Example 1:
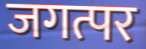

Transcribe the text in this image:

जगत्पर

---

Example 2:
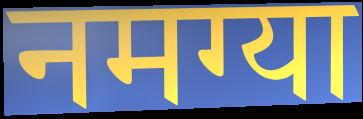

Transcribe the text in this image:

नमग्या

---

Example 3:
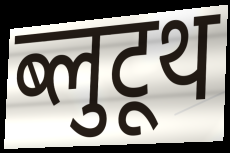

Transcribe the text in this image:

ब्लुटूथ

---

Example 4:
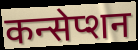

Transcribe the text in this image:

कन्सेप्शन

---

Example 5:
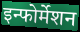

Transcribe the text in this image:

इन्फोर्मेशन